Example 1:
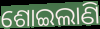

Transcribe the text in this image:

ଶୋଇଲାଣି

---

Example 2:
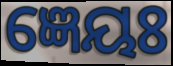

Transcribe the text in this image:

ଜ୍ଞେୟଃ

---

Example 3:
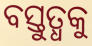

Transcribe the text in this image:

ବସ୍ତୁତ୍ଧକୁ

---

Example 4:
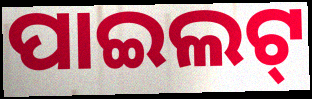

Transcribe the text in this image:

ପାଇଲଟ୍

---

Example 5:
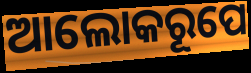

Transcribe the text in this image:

ଆଲୋକରୂପେ